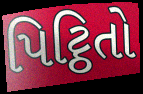
પિટ્ઠિતો